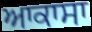
ਆਕਾਸਾ